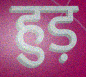
हुड़